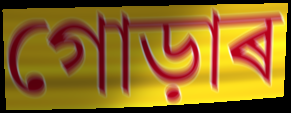
গোড়াৰ